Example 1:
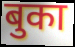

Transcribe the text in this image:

बुका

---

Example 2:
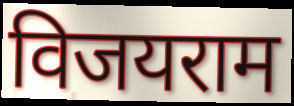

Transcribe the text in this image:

विजयराम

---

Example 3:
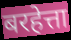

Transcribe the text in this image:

बरहेत्ता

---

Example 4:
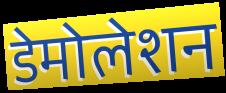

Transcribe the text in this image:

डेमोलेशन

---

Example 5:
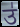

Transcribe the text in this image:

उ॑